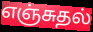
எஞ்சுதல்